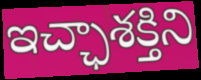
ఇచ్ఛాశక్తిని